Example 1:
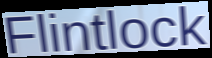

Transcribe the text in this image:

Flintlock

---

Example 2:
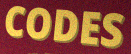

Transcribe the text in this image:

CODES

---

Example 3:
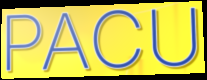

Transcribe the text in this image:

PACU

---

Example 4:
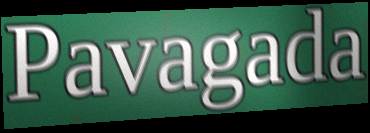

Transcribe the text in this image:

Pavagada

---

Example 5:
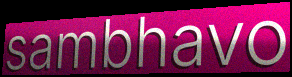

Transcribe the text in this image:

sambhavo